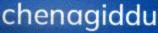
chenagiddu